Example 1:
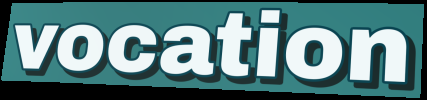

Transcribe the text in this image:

vocation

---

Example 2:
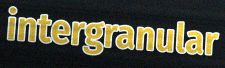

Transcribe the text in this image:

intergranular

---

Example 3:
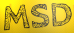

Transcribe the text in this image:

MSD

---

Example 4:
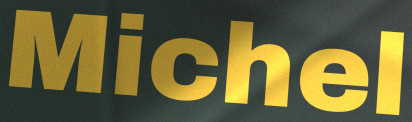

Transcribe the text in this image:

Michel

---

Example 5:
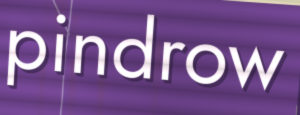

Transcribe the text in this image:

pindrow